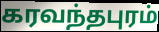
கரவந்தபுரம்